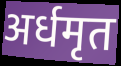
अर्धमृत